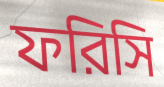
ফরিসি